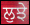
ਲੁਝੇ